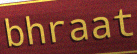
bhraat